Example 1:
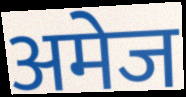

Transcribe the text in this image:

अमेज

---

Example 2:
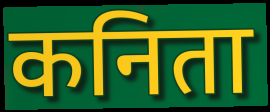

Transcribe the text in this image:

कनिता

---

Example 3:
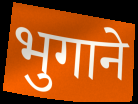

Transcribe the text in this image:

भुगाने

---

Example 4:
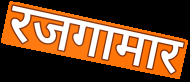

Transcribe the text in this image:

रजगामार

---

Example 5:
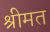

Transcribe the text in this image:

श्रीमत